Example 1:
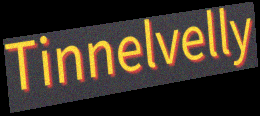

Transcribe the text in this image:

Tinnelvelly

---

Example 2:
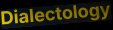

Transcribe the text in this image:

Dialectology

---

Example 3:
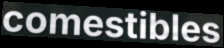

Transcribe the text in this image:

comestibles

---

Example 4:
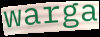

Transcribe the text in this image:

warga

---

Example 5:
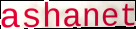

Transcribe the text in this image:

ashanet